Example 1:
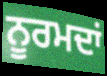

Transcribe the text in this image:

ਨੂਰਮਦਾਂ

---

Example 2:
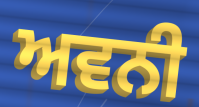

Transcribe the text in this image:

ਅਵਨੀ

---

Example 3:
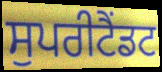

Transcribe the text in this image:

ਸੁਪਰੀਟੈਂਡਟ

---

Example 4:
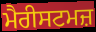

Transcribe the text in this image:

ਮੈਰੀਸਟਮਜ਼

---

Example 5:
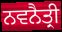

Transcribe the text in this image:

ਨਵਨੈਤ੍ਰੀ